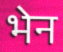
भेन